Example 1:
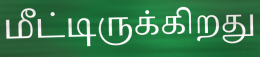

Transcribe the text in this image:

மீட்டிருக்கிறது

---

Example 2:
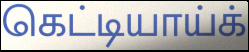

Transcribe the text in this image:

கெட்டியாய்க்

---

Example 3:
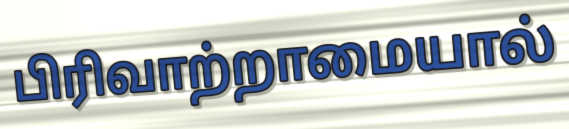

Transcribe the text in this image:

பிரிவாற்றாமையால்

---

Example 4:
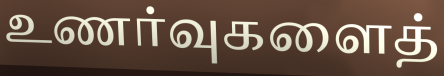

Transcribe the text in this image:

உணர்வுகளைத்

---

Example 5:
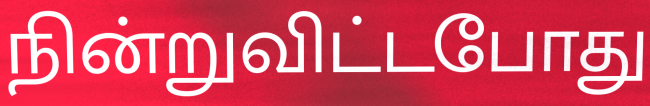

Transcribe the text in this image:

நின்றுவிட்டபோது